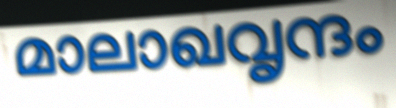
മാലാഖവൃന്ദം